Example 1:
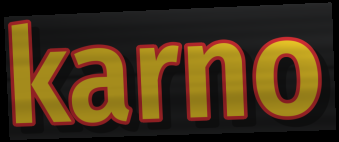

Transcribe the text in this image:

karno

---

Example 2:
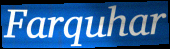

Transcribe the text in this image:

Farquhar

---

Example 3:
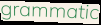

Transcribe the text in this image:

grammatic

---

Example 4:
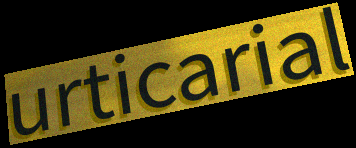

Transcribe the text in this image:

urticarial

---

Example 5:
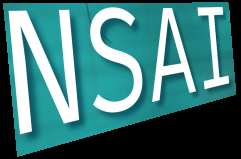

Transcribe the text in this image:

NSAI